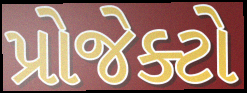
પ્રોજેક્ટો